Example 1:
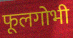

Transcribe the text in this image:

फूलगोभी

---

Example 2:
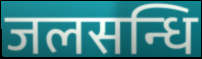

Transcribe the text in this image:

जलसन्धि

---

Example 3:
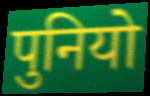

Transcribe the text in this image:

पुनियो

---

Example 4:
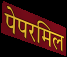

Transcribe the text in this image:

पेपरमिल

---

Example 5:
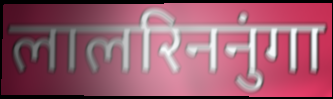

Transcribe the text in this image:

लालरिननुंगा